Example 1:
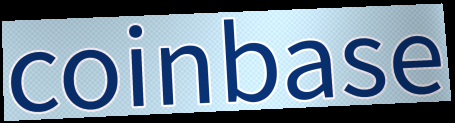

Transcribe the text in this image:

coinbase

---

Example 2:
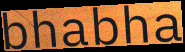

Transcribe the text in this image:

bhabha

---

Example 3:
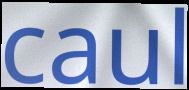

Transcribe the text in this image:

caul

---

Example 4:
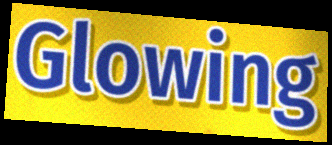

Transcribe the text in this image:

Glowing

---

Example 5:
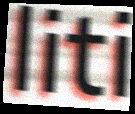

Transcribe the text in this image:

liti